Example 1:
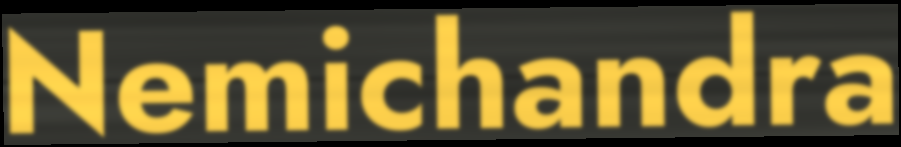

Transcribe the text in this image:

Nemichandra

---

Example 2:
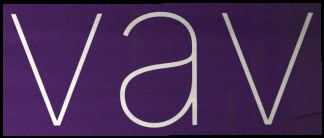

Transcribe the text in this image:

vav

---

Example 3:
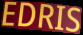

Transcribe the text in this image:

EDRIS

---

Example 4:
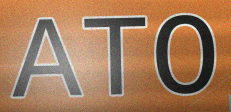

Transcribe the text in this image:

ATO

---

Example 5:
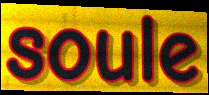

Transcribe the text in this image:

soule